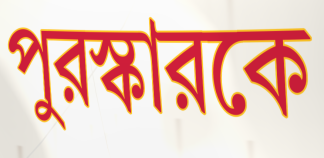
পুরস্কারকে